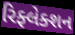
રિફ્લેક્શન